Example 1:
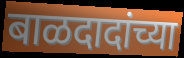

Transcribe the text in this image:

बाळदादांच्या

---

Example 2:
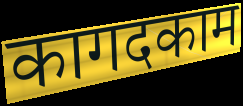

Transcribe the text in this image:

कागदकाम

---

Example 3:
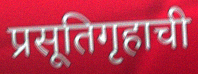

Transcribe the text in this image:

प्रसूतिगृहाची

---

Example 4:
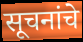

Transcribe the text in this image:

सूचनांचे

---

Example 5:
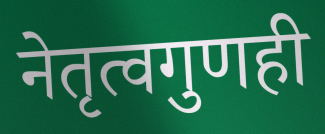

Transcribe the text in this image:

नेतृत्वगुणही